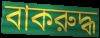
বাকরুদ্ধ